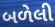
બળેલી